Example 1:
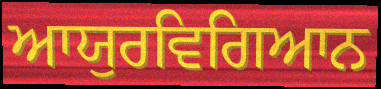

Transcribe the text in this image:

ਆਯੁਰਵਿਗਿਆਨ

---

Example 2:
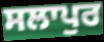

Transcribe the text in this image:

ਸਲਾਪੁਰ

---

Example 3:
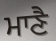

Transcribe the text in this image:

ਮਾਣੈ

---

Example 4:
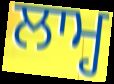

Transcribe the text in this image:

ਲਾਮ੍ਹ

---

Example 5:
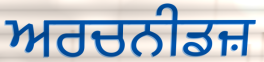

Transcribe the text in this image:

ਅਰਚਨੀਡਜ਼